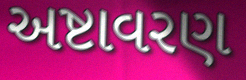
અષ્ટાવરણ